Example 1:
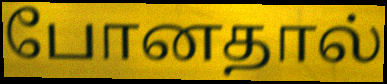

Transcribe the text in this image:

போனதால்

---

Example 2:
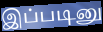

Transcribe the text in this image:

இப்படினு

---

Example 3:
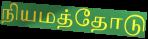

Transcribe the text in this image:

நியமத்தோடு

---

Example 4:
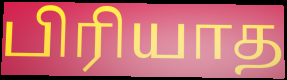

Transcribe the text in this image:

பிரியாத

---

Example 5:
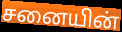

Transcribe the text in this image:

சனையின்